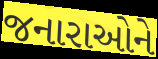
જનારાઓને